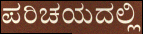
ಪರಿಚಯದಲ್ಲಿ